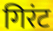
गिरंट